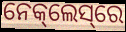
ନେକ୍‌ଲେସ୍‌ରେ